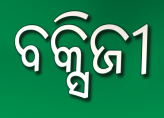
ବକ୍ସିଜୀ